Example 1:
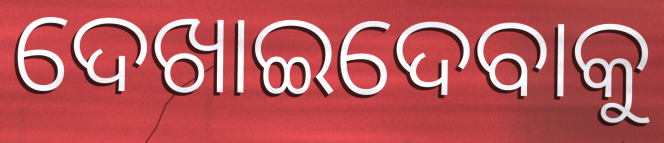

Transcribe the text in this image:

ଦେଖାଇଦେବାକୁ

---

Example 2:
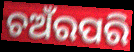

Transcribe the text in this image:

ଚଅଁରପରି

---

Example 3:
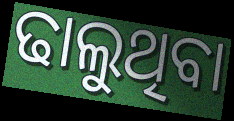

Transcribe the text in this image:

ଢାଲୁଥିବା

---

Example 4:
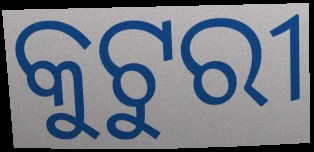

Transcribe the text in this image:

କୁଟୁରୀ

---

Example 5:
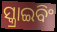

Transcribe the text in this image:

ସ୍କ୍ରାଇବିଂ